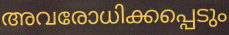
അവരോധിക്കപ്പെടും